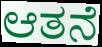
ಆತನೆ